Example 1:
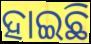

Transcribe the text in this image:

ହାଇଛି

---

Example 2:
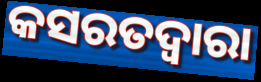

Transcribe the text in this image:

କସରତଦ୍ୱାରା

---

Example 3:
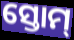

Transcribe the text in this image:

ସ୍ତୋମ୍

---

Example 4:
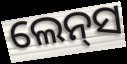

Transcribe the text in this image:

ଲେନ୍‍ସ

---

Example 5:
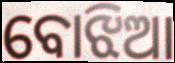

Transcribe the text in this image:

ବୋଝିଆ